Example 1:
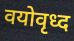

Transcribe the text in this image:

वयोवृध्द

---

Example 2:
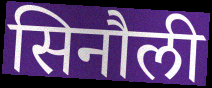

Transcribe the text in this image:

सिनौली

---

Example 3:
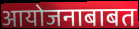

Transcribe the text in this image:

आयोजनाबाबत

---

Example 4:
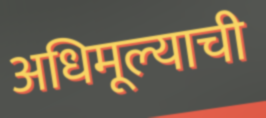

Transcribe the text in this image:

अधिमूल्याची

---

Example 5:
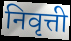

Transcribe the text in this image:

निवृत्ती